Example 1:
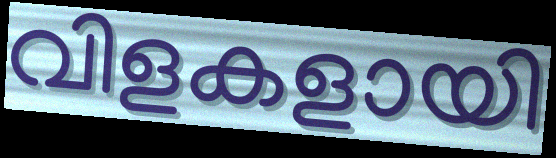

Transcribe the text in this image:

വിളകളായി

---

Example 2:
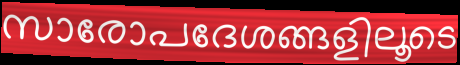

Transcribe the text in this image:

സാരോപദേശങ്ങളിലൂടെ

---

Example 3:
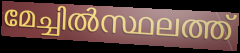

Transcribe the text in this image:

മേച്ചിൽസ്ഥലത്ത്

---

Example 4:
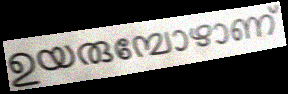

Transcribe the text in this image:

ഉയരുമ്പോഴാണ്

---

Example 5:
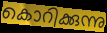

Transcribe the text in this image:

കൊറിക്കുന്നു